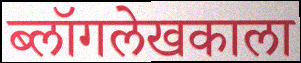
ब्लॉगलेखकाला